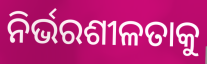
ନିର୍ଭରଶୀଳତାକୁ